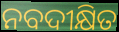
ନବଦୀକ୍ଷିତ